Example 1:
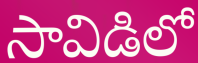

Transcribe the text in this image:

సావిడిలో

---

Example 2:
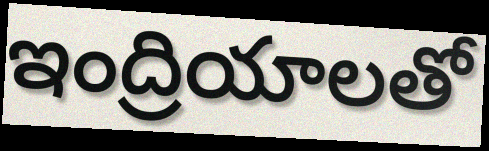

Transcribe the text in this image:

ఇంద్రియాలతో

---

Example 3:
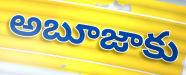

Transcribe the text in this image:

అబూజాకు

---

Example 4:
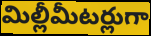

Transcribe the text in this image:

మిల్లీమీటర్లుగా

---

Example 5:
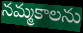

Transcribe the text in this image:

నమ్మకాలను